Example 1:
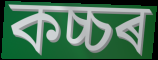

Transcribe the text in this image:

কচ্চৰ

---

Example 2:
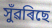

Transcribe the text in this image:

সুঁৱৰিছে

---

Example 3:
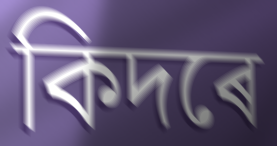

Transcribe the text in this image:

কিদৰে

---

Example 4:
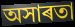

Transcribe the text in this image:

অসাৰতা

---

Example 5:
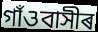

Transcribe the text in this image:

গাঁওবাসীৰ